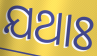
ଯଥାଃ